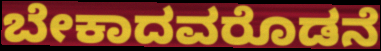
ಬೇಕಾದವರೊಡನೆ